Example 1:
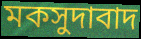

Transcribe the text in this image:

মকসুদাবাদ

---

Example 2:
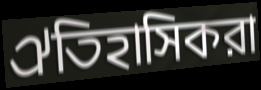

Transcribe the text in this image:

ঐতিহাসিকরা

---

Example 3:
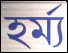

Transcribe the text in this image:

হর্ম্য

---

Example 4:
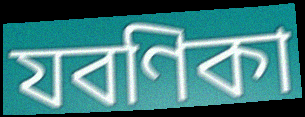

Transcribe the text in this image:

যবণিকা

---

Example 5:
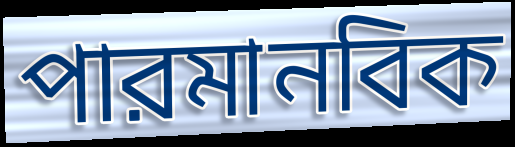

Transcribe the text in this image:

পারমানবিক